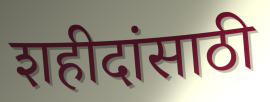
शहीदांसाठी